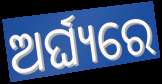
ଅର୍ଘ୍ୟରେ